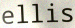
ellis